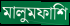
মালুমফাশি